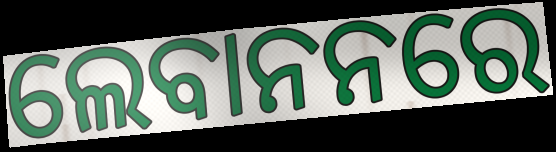
ଲେବାନନରେ